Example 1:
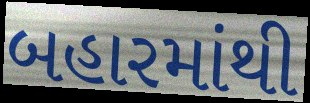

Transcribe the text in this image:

બહારમાંથી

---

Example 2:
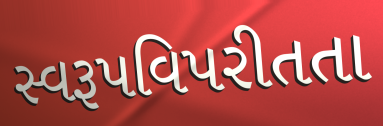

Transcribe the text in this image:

સ્વરૂપવિપરીતતા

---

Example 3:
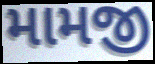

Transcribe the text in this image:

મામજી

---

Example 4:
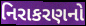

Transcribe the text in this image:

નિરાકરણનો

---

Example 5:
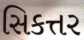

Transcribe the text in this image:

સિકત્તર